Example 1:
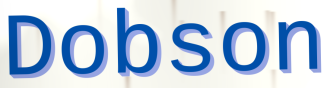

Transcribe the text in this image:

Dobson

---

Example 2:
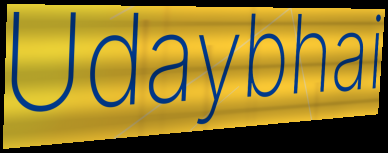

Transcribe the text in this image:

Udaybhai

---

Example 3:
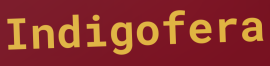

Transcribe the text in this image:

Indigofera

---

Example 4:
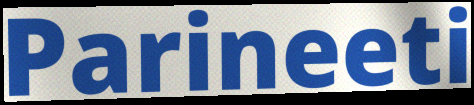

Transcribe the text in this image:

Parineeti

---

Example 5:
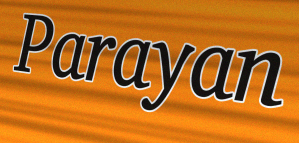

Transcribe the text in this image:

Parayan